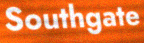
Southgate